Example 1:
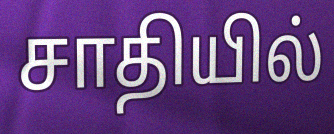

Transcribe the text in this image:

சாதியில்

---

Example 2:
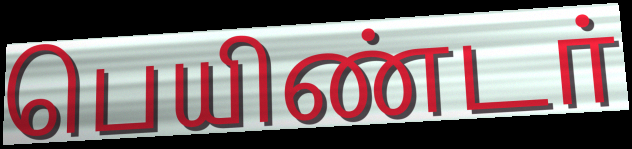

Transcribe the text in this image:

பெயிண்டர்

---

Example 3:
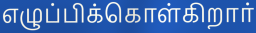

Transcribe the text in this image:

எழுப்பிக்கொள்கிறார்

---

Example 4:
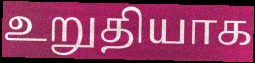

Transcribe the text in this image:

உறுதியாக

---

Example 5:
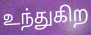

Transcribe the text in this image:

உந்துகிற